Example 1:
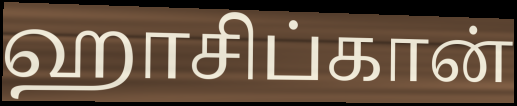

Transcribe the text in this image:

ஹாசிப்கான்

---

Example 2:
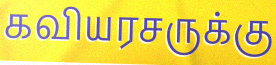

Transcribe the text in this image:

கவியரசருக்கு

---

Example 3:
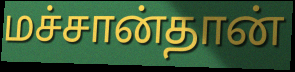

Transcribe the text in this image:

மச்சான்தான்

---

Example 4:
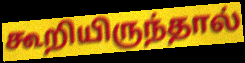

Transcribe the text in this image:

கூறியிருந்தால்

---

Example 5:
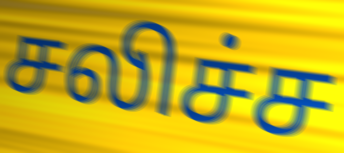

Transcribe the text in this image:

சலிச்ச